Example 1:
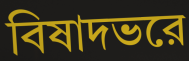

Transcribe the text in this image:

বিষাদভরে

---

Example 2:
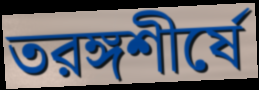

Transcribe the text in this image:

তরঙ্গশীর্ষে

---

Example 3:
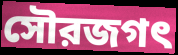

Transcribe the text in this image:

সৌরজগৎ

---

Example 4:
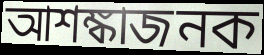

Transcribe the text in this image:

আশঙ্কাজনক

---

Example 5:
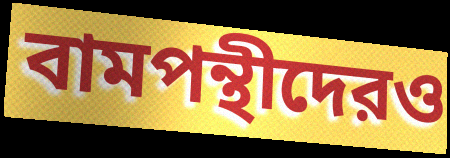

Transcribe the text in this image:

বামপন্থীদেরও